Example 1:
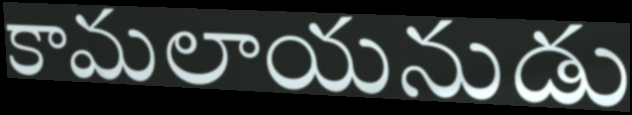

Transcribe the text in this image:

కామలాయనుడు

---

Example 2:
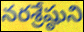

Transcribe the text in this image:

నరశ్రేష్ఠుని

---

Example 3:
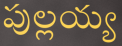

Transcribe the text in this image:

పుల్లయ్య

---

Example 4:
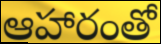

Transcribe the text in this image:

ఆహారంతో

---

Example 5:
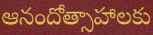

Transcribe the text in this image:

ఆనందోత్సాహాలకు